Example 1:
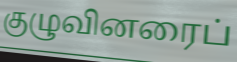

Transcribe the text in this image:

குழுவினரைப்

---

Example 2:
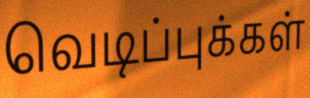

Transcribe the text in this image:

வெடிப்புக்கள்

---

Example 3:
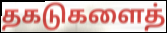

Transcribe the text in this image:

தகடுகளைத்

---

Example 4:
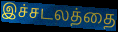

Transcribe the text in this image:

இச்சடலத்தை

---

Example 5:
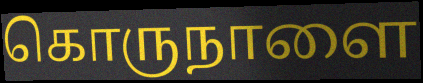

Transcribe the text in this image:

கொருநாளை